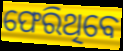
ଫେରିଥିବେ